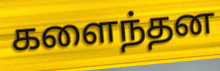
களைந்தன